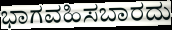
ಭಾಗವಹಿಸಬಾರದು